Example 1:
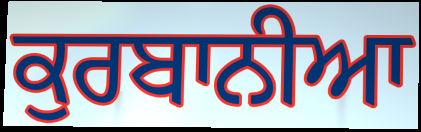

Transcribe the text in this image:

ਕੁਰਬਾਨੀਆ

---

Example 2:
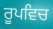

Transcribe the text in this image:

ਰੂਪਵਿਚ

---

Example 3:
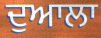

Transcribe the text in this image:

ਦੁਆਲਾ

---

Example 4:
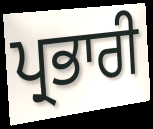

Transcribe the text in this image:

ਪ੍ਰਭਾਰੀ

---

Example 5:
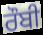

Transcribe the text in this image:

ਰੌਬੀ